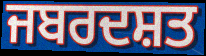
ਜਬਰਦਸ਼ਤ